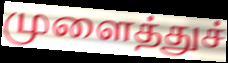
முளைத்துச்